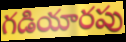
గడియారపు